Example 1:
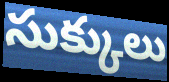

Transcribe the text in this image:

సుక్కులు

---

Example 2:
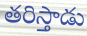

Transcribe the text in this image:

తరిస్తాడు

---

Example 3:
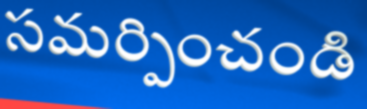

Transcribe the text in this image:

సమర్పించండి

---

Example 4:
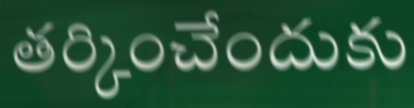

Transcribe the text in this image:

తర్కించేందుకు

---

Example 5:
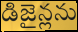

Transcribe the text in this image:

డిజైన్లను